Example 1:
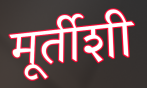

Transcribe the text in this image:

मूर्तीशी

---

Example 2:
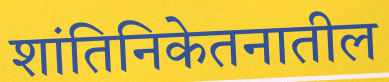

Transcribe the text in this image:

शांतिनिकेतनातील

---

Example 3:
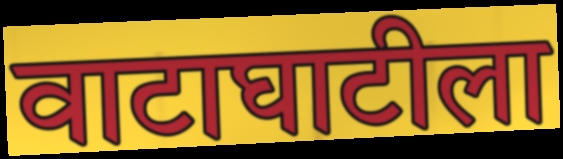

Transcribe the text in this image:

वाटाघाटीला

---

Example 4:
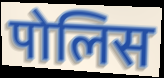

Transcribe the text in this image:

पोलिस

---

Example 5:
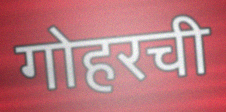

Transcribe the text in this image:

गोहरची